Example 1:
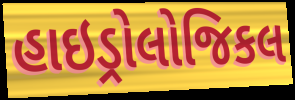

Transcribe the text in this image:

હાઇડ્રોલોજિકલ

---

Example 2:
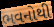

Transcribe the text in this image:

ભવનોથી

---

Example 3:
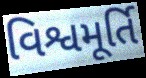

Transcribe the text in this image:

વિશ્વમૂર્તિ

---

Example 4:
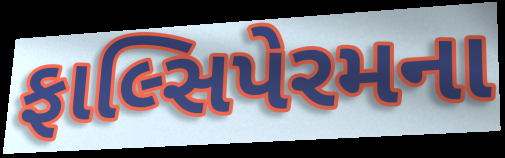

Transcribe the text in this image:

ફાલ્સિપેરમના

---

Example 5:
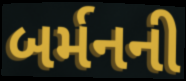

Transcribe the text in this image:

બર્મનની